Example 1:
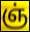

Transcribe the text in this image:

ஞ்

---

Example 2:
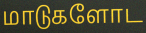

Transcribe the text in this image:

மாடுகளோட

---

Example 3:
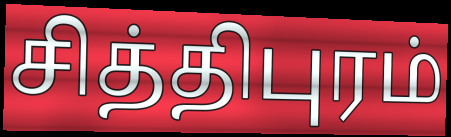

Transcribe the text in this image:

சித்திபுரம்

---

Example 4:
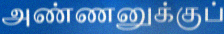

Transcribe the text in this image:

அண்ணனுக்குப்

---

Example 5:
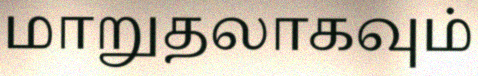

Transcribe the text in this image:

மாறுதலாகவும்